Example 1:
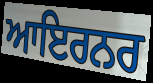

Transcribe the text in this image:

ਆਇਰਨਰ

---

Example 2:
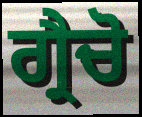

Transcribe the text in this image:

ਗ੍ਰੈਚੋ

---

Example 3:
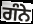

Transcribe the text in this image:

ਗੰਨੇ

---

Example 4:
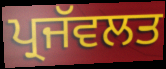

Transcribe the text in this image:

ਪ੍ਰਜੱਵਲਤ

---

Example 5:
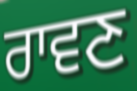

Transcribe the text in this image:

ਰਾਵਣ